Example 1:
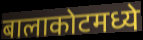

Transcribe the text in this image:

बालाकोटमध्ये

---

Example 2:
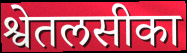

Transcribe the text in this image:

श्वेतलसीका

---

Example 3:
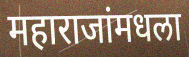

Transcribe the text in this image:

महाराजांमधला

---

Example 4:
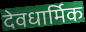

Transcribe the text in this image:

देवधार्मिक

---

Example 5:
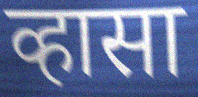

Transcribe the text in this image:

व्हासा